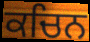
ਕਚਿਨ